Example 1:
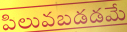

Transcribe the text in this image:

పిలువబడడమే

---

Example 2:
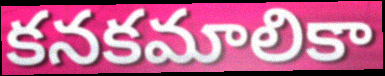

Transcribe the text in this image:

కనకమాలికా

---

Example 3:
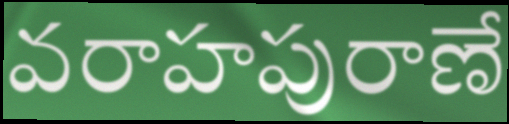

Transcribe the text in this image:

వరాహపురాణే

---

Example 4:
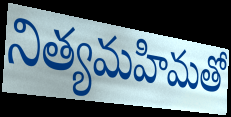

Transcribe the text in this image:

నిత్యమహిమతో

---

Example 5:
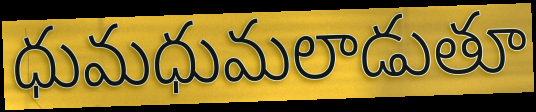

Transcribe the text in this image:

ధుమధుమలాడుతూ